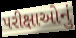
પરીક્ષાઓનું